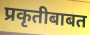
प्रकृतीबाबत